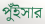
পুঁইসার